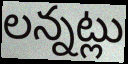
లన్నట్లు